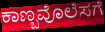
ಕಾಣ್ಬವೊಲೆಸಗೆ